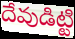
దేవుడిట్టి